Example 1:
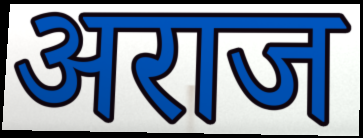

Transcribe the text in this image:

अराज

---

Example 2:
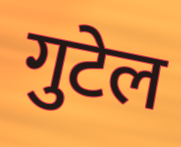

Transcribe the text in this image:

गुटेल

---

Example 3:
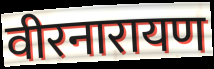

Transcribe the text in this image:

वीरनारायण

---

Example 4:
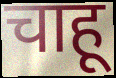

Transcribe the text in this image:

चाहू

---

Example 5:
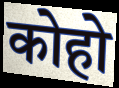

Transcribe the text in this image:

कोहो